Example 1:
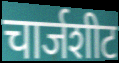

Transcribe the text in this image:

चार्जशीट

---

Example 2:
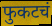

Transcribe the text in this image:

फुकटचं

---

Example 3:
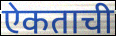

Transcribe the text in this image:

ऐकताची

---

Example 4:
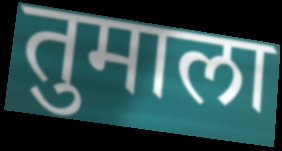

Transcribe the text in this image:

तुमाला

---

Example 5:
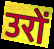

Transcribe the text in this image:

उरों